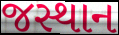
જસ્થાન